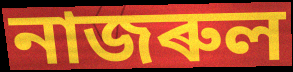
নাজৰুল